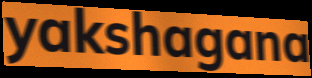
yakshagana